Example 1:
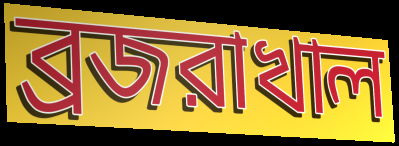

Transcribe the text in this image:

ব্রজরাখাল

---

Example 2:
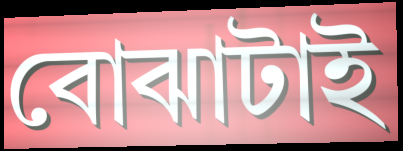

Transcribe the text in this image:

বোঝাটাই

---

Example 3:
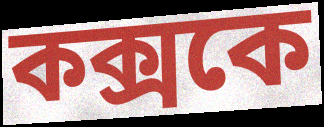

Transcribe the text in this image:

কক্সকে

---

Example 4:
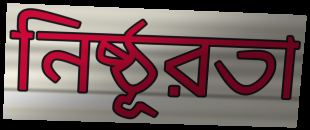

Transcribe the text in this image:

নিষ্ঠূরতা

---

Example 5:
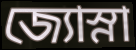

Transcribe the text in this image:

জ্যোস্না